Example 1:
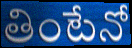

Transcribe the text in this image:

తింటేనో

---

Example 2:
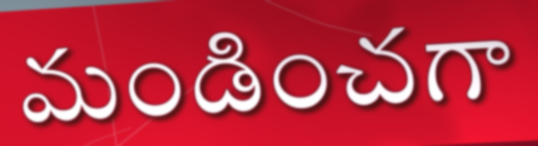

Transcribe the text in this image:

మండించగా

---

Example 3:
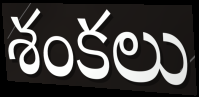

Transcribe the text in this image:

శంకలు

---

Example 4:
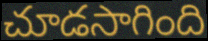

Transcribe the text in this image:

చూడసాగింది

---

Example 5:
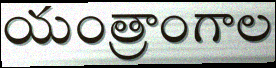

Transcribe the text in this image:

యంత్రాంగాల